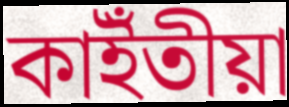
কাইঁতীয়া